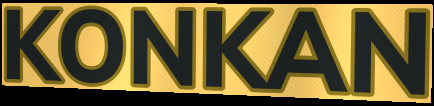
KONKAN